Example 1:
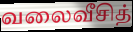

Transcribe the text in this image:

வலைவீசித்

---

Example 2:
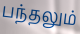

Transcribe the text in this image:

பந்தலும்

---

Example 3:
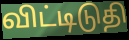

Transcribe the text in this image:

விட்டிடுதி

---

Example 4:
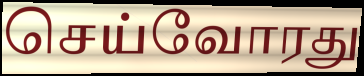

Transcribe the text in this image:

செய்வோரது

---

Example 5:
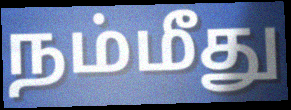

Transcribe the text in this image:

நம்மீது